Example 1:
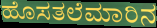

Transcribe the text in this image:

ಹೊಸತಲೆಮಾರಿನ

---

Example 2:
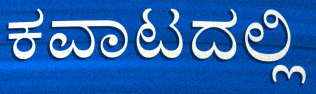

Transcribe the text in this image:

ಕವಾಟದಲ್ಲಿ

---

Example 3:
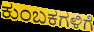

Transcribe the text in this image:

ಕುಂಬಕಗಳಿಗೆ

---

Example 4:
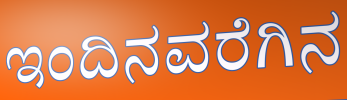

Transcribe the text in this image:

ಇಂದಿನವರೆಗಿನ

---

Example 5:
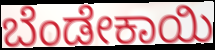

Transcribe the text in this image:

ಬೆಂಡೇಕಾಯಿ